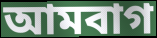
আমবাগ